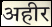
अहीर